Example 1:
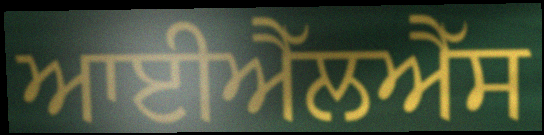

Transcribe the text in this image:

ਆਈਐੱਲਐੱਸ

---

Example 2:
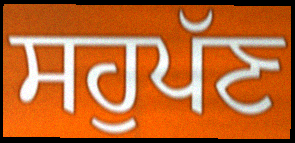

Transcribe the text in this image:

ਸਹੁਪੱਣ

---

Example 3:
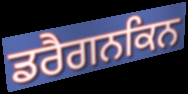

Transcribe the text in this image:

ਡਰੈਗਨਕਿਨ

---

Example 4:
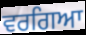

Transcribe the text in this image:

ਵਰਗਿਆ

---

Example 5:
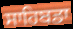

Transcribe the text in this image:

ਸਾਹਿਬਡਾ